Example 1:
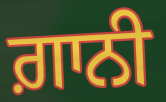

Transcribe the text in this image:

ਗ਼ਾਨੀ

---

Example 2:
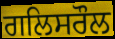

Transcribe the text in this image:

ਗਲਿਸਰੌਲ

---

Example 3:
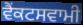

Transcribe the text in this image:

ਵੈਂਕਟਸਵਾਮੀ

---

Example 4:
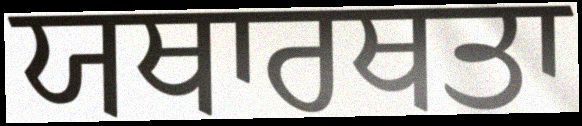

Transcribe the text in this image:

ਯਥਾਰਥਤਾ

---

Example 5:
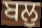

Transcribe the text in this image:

ਬਲੁ